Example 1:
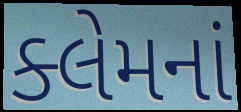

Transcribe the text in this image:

ક્લેમનાં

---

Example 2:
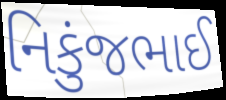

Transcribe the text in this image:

નિકુંજભાઈ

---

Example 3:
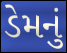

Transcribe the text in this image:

ડેમનું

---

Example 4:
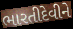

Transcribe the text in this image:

ભારતીદેવીને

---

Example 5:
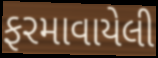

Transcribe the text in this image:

ફરમાવાયેલી